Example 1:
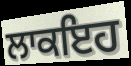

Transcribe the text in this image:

ਲਾਕਇਹ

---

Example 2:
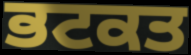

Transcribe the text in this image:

ਭਟਕਤ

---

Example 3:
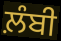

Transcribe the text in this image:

ਲ਼ੰਬੀ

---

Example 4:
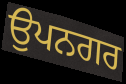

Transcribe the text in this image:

ਉਪਨਗਰ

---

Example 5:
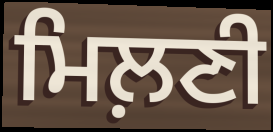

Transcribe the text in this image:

ਮਿਲ਼ਣੀ